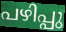
പഴിപ്പു